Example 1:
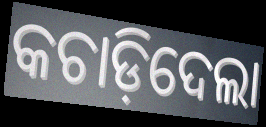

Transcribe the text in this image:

କଚାଡ଼ିଦେଲା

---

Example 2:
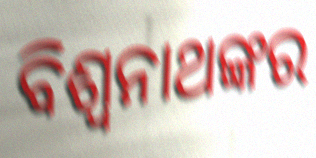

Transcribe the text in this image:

ବିଶ୍ୱନାଥଙ୍କର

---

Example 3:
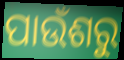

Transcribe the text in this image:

ପାଉଁଶରୁ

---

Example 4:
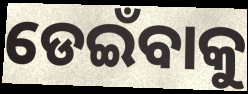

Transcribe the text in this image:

ଡେଇଁବାକୁ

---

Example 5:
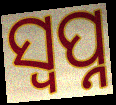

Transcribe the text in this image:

ସ୍ବପ୍ନ